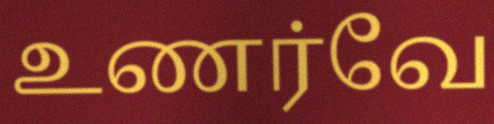
உணர்வே